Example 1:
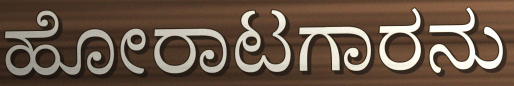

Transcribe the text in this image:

ಹೋರಾಟಗಾರನು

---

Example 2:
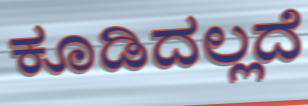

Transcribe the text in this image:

ಕೂಡಿದಲ್ಲದೆ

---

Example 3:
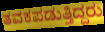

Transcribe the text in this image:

ತವಕಪಡುತ್ತಿದ್ದರು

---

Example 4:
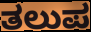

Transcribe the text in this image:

ತಲುಪ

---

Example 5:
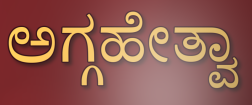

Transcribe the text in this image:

ಅಗ್ಗಹೇತ್ವಾ